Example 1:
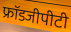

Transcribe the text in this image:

फ्रॉडजीपीटी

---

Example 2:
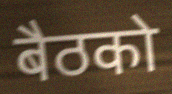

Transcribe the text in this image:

बैठको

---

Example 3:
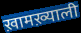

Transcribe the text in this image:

ख़ामख़्याली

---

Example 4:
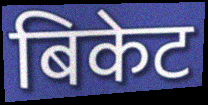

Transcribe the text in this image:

बिकेट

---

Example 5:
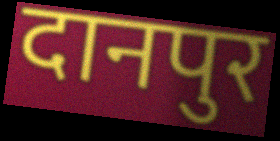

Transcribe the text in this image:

दानपुर